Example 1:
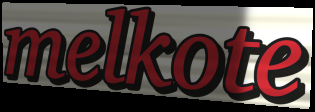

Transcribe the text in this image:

melkote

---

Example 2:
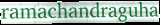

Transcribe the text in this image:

ramachandraguha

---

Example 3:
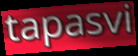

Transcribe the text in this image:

tapasvi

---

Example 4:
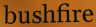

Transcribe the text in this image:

bushfire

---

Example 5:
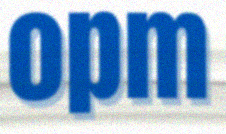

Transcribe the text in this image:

opm